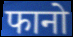
फानो